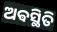
ଅଵସ୍ଥିତି